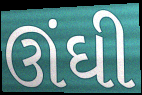
ઊંઘી